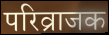
परिव्राजक